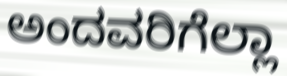
ಅಂದವರಿಗೆಲ್ಲಾ